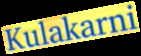
Kulakarni